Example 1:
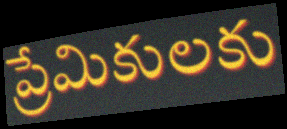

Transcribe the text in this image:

ప్రేమికులకు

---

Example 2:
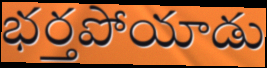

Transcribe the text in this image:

భర్తపోయాడు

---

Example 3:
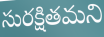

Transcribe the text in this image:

సురక్షితమని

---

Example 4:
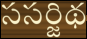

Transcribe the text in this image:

ససర్జిథ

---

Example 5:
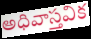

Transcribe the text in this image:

అధివాస్తవిక